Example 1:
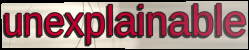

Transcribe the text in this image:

unexplainable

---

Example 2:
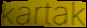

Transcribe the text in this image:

kartak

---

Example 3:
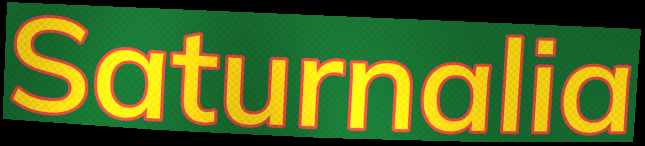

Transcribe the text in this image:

Saturnalia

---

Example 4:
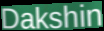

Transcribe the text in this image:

Dakshin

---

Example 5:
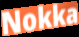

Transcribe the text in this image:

Nokka